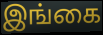
இங்கை